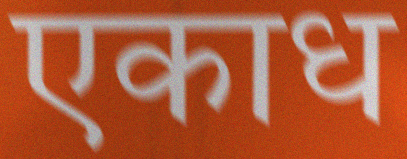
एकाध